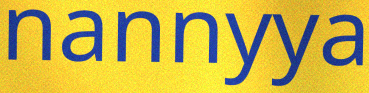
nannyya